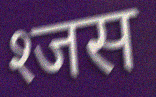
श्जस